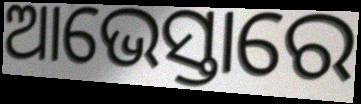
ଆଭେସ୍ତାରେ